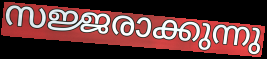
സജ്ജരാക്കുന്നു